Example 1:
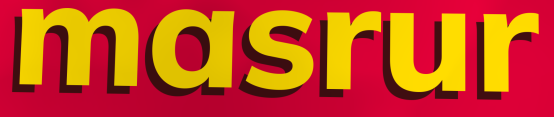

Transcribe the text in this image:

masrur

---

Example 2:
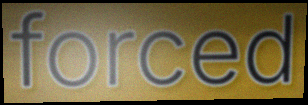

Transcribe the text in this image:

forced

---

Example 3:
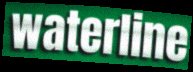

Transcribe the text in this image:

waterline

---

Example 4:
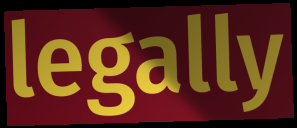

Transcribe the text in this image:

legally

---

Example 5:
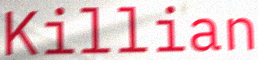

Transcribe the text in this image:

Killian